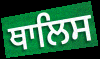
ਥਾਲਿਸ